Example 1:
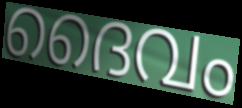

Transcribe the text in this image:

ദൈവം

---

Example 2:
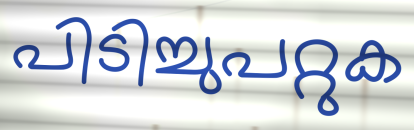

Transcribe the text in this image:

പിടിച്ചുപറ്റുക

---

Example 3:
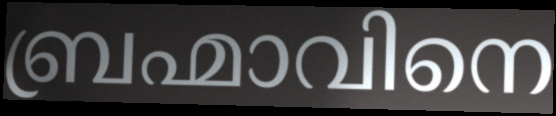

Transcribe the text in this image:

ബ്രഹ്മാവിനെ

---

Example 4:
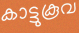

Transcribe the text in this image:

കാട്ടുകൂവ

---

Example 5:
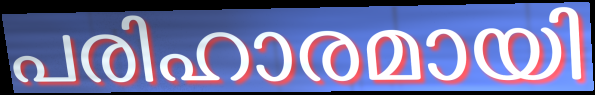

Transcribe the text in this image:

പരിഹാരമായി